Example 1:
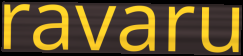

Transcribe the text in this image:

ravaru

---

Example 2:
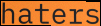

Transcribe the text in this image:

haters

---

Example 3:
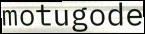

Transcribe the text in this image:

motugode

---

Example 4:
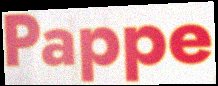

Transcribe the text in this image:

Pappe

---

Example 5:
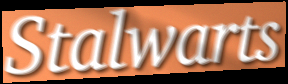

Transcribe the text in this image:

Stalwarts